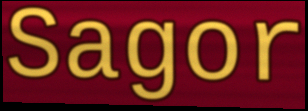
Sagor